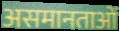
असमानताओं